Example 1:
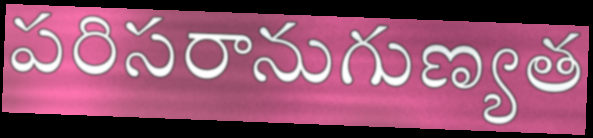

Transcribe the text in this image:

పరిసరానుగుణ్యత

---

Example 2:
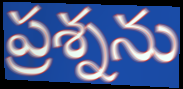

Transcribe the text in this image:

ప్రశ్నను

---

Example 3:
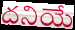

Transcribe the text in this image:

దనియే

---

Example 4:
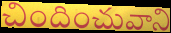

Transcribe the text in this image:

చిందించువాని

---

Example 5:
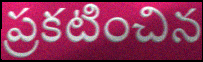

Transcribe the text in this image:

ప్రకటించిన